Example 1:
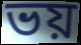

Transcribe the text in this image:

ভয়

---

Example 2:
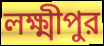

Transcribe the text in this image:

লক্ষ্মীপুর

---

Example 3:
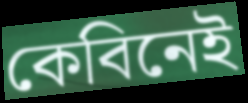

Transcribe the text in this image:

কেবিনেই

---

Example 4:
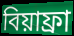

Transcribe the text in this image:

বিয়াফ্রা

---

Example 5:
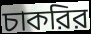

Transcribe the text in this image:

চাকরির